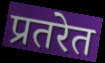
प्रतरेत